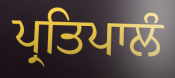
ਪ੍ਰਤਿਪਾਲੰ